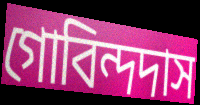
গোবিন্দদাস